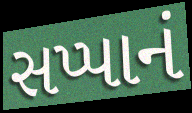
સપ્પાનં